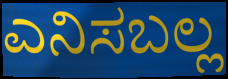
ಎನಿಸಬಲ್ಲ